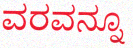
ವರವನ್ನೂ